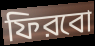
ফিরবো